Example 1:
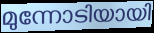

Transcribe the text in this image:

മുന്നോടിയായി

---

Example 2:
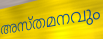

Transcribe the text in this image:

അസ്തമനവും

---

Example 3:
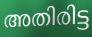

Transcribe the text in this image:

അതിരിട്ട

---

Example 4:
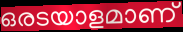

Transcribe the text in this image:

ഒരടയാളമാണ്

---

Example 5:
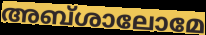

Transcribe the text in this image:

അബ്ശാലോമേ